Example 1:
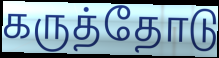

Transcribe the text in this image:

கருத்தோடு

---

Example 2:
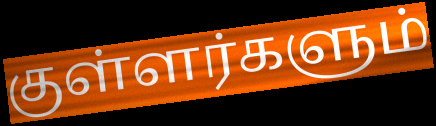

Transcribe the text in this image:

குள்ளர்களும்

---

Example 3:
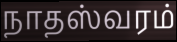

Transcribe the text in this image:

நாதஸ்வரம்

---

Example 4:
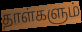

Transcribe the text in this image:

தாள்களும்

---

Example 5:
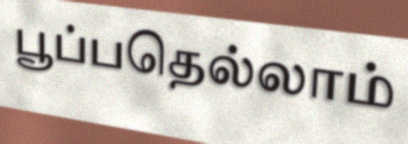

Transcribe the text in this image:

பூப்பதெல்லாம்